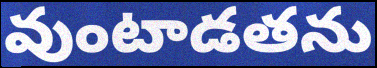
వుంటాడతను